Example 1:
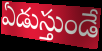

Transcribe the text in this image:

ఏడుస్తుండే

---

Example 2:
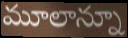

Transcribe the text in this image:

మూలాన్నూ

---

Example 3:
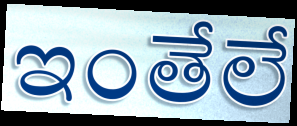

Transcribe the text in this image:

ఇంతేలే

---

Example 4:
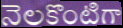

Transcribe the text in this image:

నెలకొంటిగా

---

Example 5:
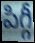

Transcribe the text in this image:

పిగ్గీ